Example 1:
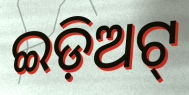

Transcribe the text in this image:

ଇଡ଼ିଅଟ୍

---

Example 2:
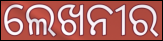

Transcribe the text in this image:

ଲେଖନୀର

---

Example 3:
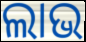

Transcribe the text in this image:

ଲାଭ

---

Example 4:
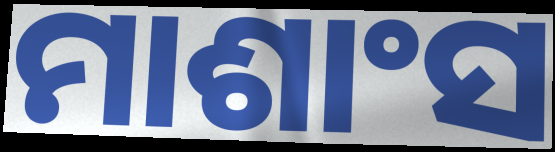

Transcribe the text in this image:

ମାଶାଂସ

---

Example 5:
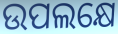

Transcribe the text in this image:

ଉପଲକ୍ଷେ